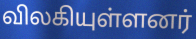
விலகியுள்ளனர்